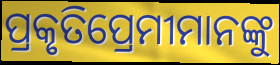
ପ୍ରକୃତିପ୍ରେମୀମାନଙ୍କୁ